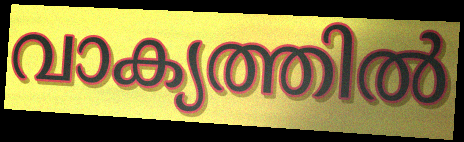
വാക്യത്തിൽ